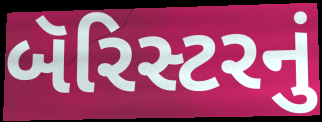
બૅરિસ્ટરનું